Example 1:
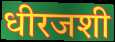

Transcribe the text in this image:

धीरजशी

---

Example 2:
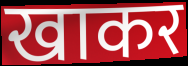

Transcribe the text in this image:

खाकर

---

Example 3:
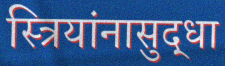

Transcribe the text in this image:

स्त्रियांनासुद्धा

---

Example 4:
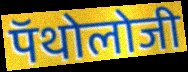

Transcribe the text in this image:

पॅथोलोजी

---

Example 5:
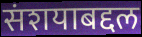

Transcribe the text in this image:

संशयाबद्दल